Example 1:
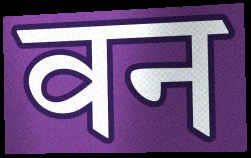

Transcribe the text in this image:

वन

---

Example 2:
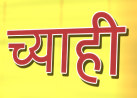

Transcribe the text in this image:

च्याही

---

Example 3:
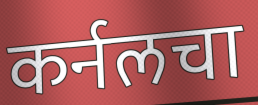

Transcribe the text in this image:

कर्नलचा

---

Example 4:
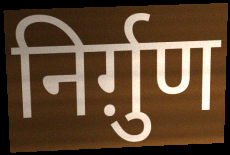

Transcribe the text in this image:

निर्ग़ुण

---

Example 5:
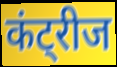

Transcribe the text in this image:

कंट्रीज